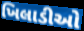
ખિલાડીઓ